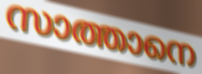
സാത്താനെ